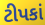
ટીપકાં